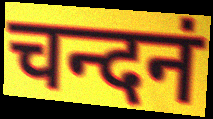
चन्दनं